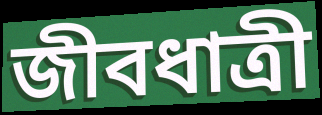
জীবধাত্রী